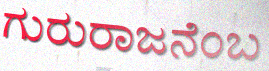
ಗುರುರಾಜನೆಂಬ